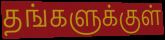
தங்களுக்குள்